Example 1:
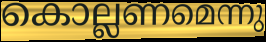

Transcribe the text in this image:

കൊല്ലണമെന്നു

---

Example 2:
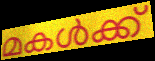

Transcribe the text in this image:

മകൾക്ക്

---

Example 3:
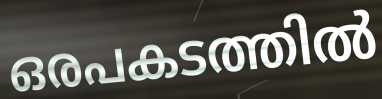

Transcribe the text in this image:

ഒരപകടത്തിൽ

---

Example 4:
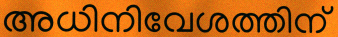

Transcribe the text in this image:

അധിനിവേശത്തിന്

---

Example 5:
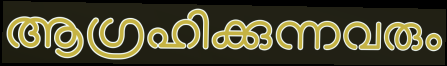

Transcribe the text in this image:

ആഗ്രഹിക്കുന്നവരും